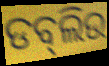
ଡବ୍‍ଲିଉ